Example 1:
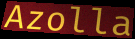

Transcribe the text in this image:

Azolla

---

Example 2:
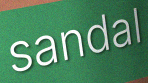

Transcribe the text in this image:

sandal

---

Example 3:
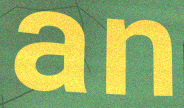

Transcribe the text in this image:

an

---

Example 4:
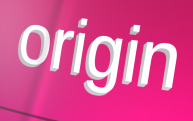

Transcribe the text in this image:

origin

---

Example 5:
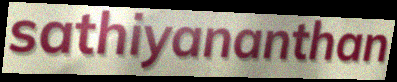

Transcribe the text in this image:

sathiyananthan